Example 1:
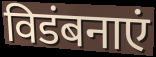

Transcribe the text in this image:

विडंबनाएं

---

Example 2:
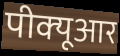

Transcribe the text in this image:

पीक्यूआर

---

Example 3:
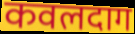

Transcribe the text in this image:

कवलदाग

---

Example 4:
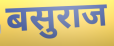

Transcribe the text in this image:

बसुराज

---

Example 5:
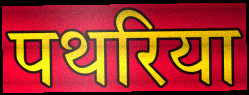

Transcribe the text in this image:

पथरिया